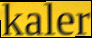
kaler